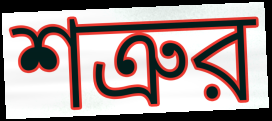
শত্রুর